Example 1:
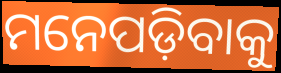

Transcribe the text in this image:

ମନେପଡ଼ିବାକୁ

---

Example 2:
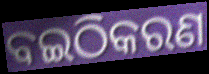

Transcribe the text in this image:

ବଇଠିକରଣ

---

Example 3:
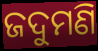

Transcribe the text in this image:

ଜଦୁମଣି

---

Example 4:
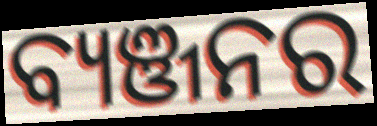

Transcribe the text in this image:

ବ୍ୟଞ୍ଜନର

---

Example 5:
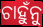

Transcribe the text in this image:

ଚାହୁଁନୁ